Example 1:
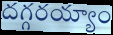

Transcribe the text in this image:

దగ్గరయ్యాం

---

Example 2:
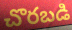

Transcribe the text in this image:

చొరబడి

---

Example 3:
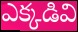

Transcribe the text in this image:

ఎక్కడివి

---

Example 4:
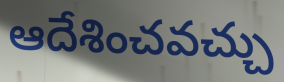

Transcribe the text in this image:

ఆదేశించవచ్చు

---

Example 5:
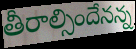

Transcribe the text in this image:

తీరాల్సిందేనన్న